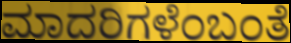
ಮಾದರಿಗಳೆಂಬಂತೆ